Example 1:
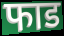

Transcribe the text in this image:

फाड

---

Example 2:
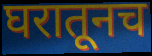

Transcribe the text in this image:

घरातूनच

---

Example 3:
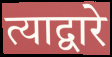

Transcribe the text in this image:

त्याद्वारे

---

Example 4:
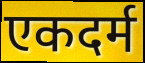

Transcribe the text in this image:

एकदर्म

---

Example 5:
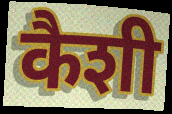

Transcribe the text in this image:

कैशी